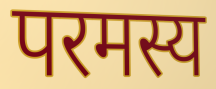
परमस्य